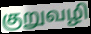
குறுவழி